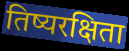
तिष्यरक्षिता